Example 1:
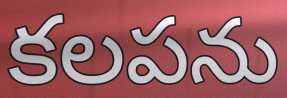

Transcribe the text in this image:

కలపను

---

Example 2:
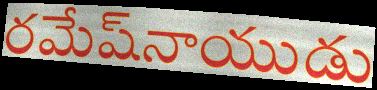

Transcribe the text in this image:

రమేష్‌నాయుడు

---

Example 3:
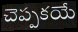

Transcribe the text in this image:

చెప్పకయే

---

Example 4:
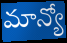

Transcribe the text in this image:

మాన్యో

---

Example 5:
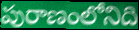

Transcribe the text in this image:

పురాణంలోనిది